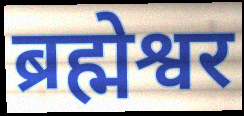
ब्रह्मेश्वर